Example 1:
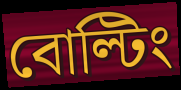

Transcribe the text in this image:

বোল্টিং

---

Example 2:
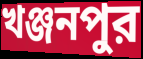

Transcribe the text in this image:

খঞ্জনপুর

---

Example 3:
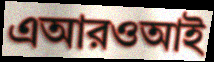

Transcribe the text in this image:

এআরওআই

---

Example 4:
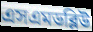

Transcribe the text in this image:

এসএমডব্লিউ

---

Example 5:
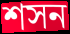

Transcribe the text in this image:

শসন